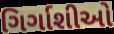
ગિર્ગાશીઓ